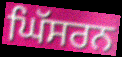
ਘਿੱਸਰਨ